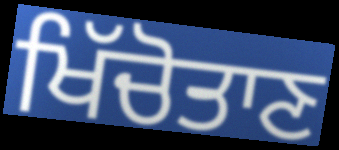
ਖਿੱਚੋਤਾਣ